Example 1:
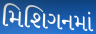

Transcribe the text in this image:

મિશિગનમાં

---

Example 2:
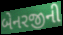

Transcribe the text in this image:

બેનરજીની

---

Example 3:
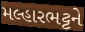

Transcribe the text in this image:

મલ્હારભટ્ટને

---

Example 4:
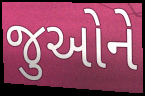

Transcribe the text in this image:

જુઓને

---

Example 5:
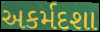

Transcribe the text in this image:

અકર્મદશા